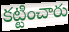
కట్టించారు